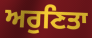
ਅਰੁਣਿਤਾ